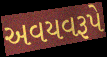
અવયવરૂપે